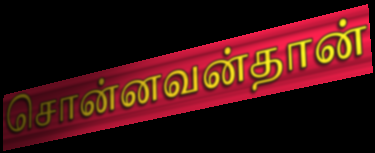
சொன்னவன்தான்